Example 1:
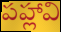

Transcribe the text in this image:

పహ్లావి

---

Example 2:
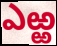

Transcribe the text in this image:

ఎఱ్ఱ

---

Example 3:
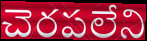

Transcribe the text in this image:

చెరపలేని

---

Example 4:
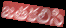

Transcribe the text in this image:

జతకలిసి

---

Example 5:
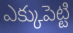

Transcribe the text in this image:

ఎక్కుపెట్టి